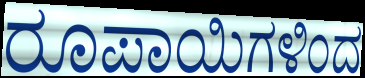
ರೂಪಾಯಿಗಳಿಂದ